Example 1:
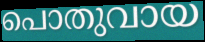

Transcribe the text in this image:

പൊതുവായ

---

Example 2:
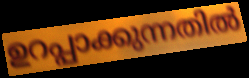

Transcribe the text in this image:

ഉറപ്പാക്കുന്നതിൽ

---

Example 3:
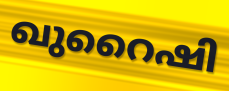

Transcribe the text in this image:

ഖുറൈഷി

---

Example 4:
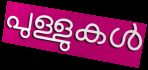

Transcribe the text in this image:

പുള്ളുകൾ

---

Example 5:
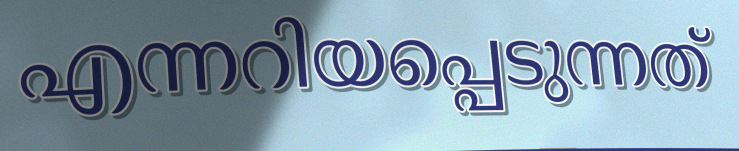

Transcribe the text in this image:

എന്നറിയപ്പെടുന്നത്